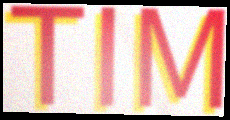
TIM